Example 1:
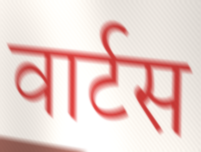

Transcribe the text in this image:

वार्टस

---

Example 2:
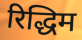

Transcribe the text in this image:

रिद्धिम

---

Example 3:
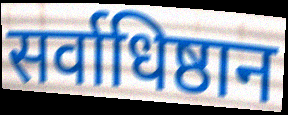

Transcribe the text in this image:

सर्वाधिष्ठान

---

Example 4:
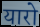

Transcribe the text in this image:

यारो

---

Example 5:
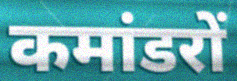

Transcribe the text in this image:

कमांडरों